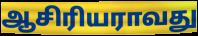
ஆசிரியராவது